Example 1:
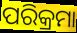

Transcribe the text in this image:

ପରିକ୍ରମା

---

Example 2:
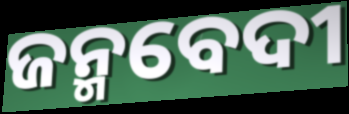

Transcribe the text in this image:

ଜନ୍ମବେଦୀ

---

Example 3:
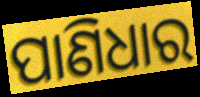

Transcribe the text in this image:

ପାଣିଧାର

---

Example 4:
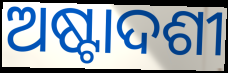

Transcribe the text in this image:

ଅଷ୍ଟାଦଶୀ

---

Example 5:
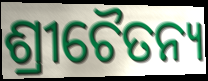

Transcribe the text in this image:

ଶ୍ରୀଚୈତନ୍ୟ